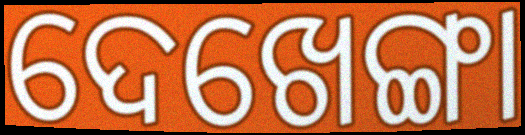
ଦେଖେଙ୍ଗା